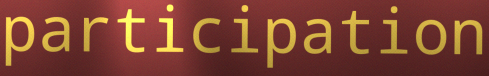
participation